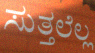
ಸುತ್ತಲೆಲ್ಲ